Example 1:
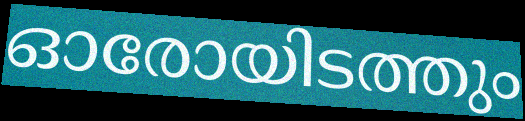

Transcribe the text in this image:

ഓരോയിടത്തും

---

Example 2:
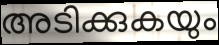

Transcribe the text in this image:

അടിക്കുകയും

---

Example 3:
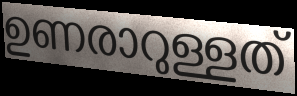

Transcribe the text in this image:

ഉണരാറുള്ളത്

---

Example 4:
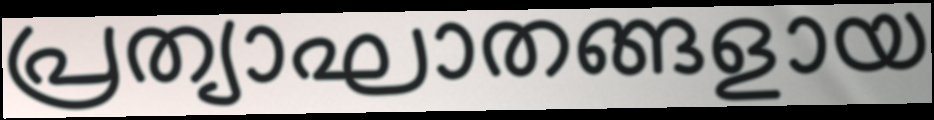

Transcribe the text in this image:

പ്രത്യാഘാതങ്ങളായ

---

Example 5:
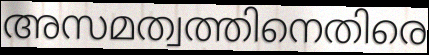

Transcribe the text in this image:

അസമത്വത്തിനെതിരെ